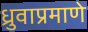
ध्रुवाप्रमाणे